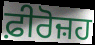
ਫ਼ੀਰੋਜ਼ਹ